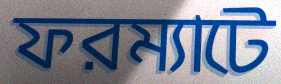
ফরম্যাটে